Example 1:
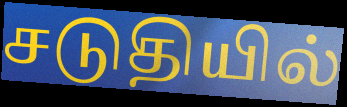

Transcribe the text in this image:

சடுதியில்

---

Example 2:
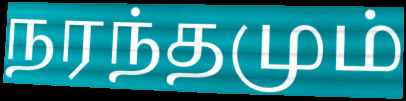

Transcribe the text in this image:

நரந்தமும்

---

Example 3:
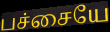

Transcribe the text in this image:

பச்சையே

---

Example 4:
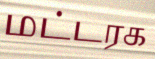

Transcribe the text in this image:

மட்டரக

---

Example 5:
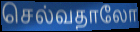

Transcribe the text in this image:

செல்வதாலோ